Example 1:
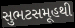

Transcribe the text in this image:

સુભટસમૂહથી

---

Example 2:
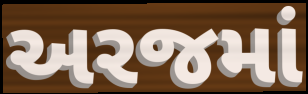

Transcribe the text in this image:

અરજમાં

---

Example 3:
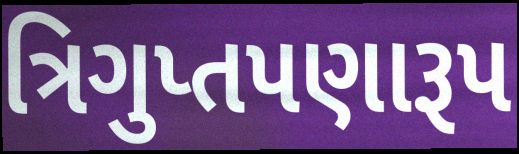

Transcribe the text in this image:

ત્રિગુપ્તપણારૂપ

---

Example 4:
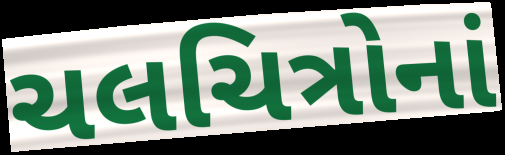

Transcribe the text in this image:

ચલચિત્રોનાં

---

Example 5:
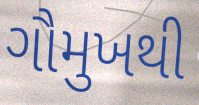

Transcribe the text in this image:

ગૌમુખથી